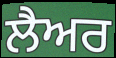
ਲੈਅਰ